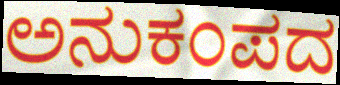
ಅನುಕಂಪದ